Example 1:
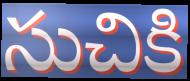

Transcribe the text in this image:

సుచికి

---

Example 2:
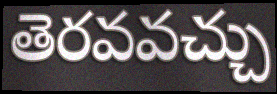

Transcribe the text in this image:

తెరవవచ్చు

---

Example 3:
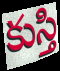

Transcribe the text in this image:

కుస్తి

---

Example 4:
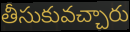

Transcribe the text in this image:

తీసుకువచ్చారు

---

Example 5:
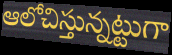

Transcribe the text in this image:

ఆలోచిస్తున్నట్టుగా